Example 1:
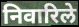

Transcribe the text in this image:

निवारिले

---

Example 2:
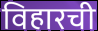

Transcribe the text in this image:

विहारची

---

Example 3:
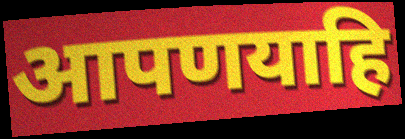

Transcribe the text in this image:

आपणयाहि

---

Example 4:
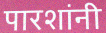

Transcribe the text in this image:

पारशांनी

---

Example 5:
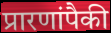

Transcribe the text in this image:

प्रारणांपैकी